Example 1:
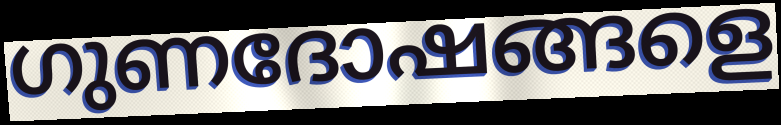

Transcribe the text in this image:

ഗുണദോഷങ്ങളെ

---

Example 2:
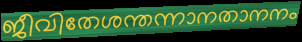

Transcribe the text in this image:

ജീവിതേശന്തന്നാനതാനനം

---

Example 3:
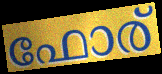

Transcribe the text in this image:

ഫോര്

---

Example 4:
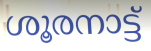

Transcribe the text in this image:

ശൂരനാട്ട്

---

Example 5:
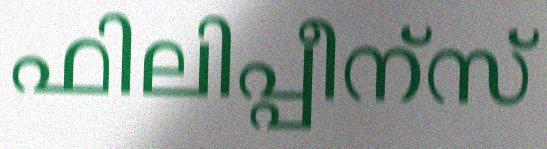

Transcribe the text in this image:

ഫിലിപ്പീന്സ്